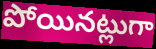
పోయినట్లుగా